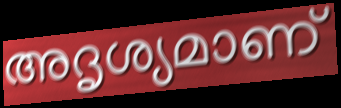
അദൃശ്യമാണ്